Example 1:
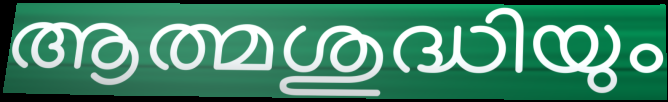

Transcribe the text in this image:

ആത്മശുദ്ധിയും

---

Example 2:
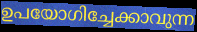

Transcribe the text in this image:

ഉപയോഗിച്ചേക്കാവുന്ന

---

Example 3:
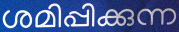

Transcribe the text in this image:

ശമിപ്പിക്കുന്ന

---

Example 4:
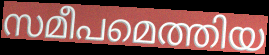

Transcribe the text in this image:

സമീപമെത്തിയ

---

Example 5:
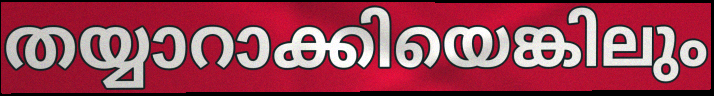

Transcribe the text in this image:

തയ്യാറാക്കിയെങ്കിലും